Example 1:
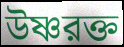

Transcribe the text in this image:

উষ্ণরক্ত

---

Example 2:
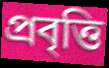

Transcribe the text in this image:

প্রবৃত্তি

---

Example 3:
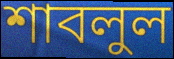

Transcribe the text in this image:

শাবলুল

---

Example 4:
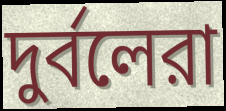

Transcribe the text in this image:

দুর্বলেরা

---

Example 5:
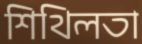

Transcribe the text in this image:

শিথিলতা